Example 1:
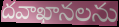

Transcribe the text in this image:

దవాఖానలను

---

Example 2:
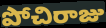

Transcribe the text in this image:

పోచిరాజు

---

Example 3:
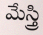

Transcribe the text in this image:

మేస్త్రి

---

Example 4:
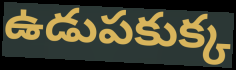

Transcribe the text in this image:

ఉడుపకుక్క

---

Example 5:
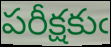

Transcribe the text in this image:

పరీక్షకుఁ